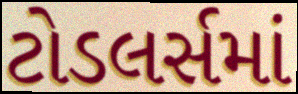
ટોડલર્સમાં